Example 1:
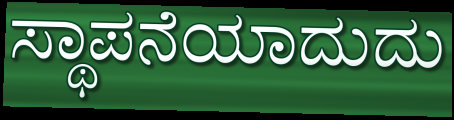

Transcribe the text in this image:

ಸ್ಥಾಪನೆಯಾದುದು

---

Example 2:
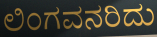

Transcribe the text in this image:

ಲಿಂಗವನರಿದು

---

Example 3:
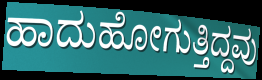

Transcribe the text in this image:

ಹಾದುಹೋಗುತ್ತಿದ್ದವು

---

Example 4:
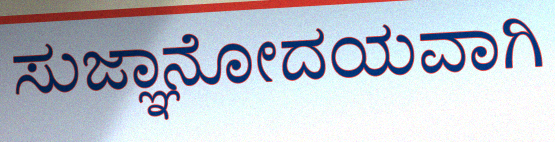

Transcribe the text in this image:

ಸುಜ್ಞಾನೋದಯವಾಗಿ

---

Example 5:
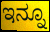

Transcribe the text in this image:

ಇನ್ನೂ